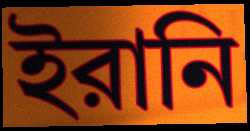
ইরানি